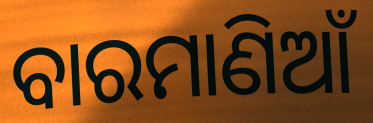
ବାରମାଣିଆଁ